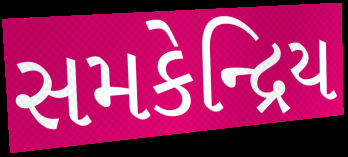
સમકેન્દ્રિય